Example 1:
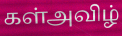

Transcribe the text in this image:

கள்அவிழ்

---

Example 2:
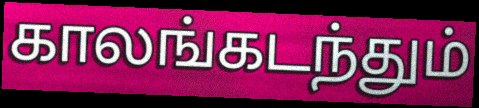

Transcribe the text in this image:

காலங்கடந்தும்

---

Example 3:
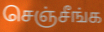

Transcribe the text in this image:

செஞ்சீங்க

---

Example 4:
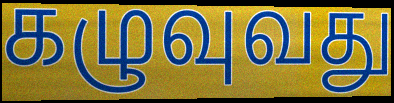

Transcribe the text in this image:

கழுவுவது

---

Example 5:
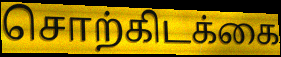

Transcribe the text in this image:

சொற்கிடக்கை